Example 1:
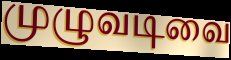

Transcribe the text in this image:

முழுவடிவை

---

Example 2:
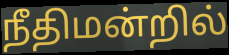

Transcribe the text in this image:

நீதிமன்றில்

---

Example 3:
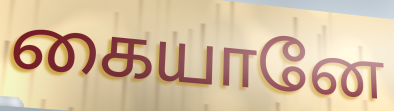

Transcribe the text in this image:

கையானே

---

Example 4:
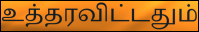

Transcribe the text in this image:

உத்தரவிட்டதும்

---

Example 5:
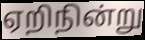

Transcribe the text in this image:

ஏறிநின்று